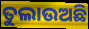
ତୁଲାଉଅଛି